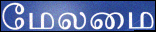
மேலமை